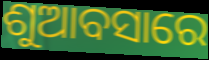
ଶୁଆବସାରେ